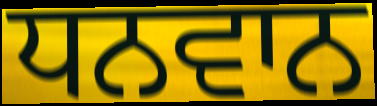
ਧਨਵਾਨ